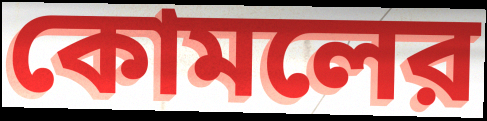
কোমলের